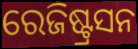
ରେଜିଷ୍ଟ୍ରସନ